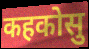
कहकोसु